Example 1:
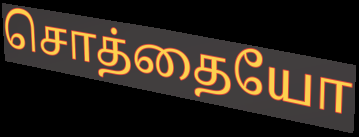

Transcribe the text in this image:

சொத்தையோ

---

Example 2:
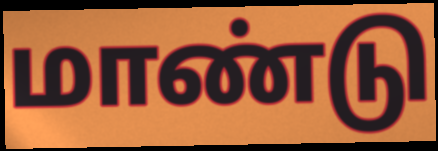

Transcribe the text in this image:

மாண்டு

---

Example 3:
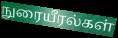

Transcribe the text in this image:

நுரையீரல்கள்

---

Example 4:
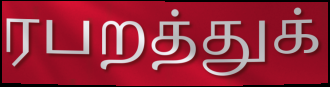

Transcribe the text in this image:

ரபறத்துக்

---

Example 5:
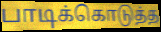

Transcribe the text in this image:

பாடிக்கொடுத்த